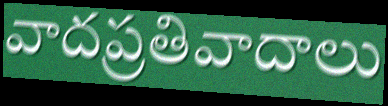
వాదప్రతివాదాలు